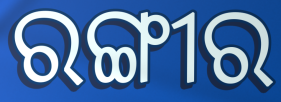
ରଙ୍ଗୀର